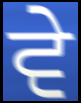
ਵੇ